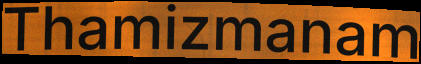
Thamizmanam